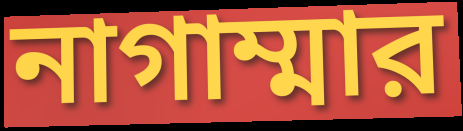
নাগাম্মার